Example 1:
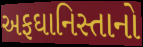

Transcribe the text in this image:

અફઘાનિસ્તાનો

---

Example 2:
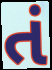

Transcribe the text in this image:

તં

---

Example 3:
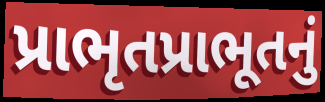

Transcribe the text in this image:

પ્રાભૃતપ્રાભૂતનું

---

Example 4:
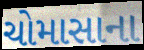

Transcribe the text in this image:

ચોમાસાના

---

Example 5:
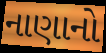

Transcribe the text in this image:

નાણાનો